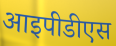
आइपीडीएस